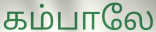
கம்பாலே